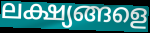
ലക്ഷ്യങ്ങളെ